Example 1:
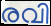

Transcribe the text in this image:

രവി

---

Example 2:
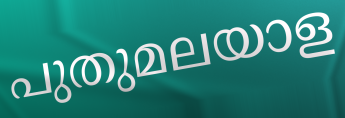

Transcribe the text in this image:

പുതുമലയാള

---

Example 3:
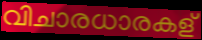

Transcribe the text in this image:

വിചാരധാരകള്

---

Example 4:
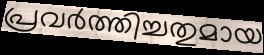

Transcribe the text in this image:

പ്രവർത്തിച്ചതുമായ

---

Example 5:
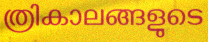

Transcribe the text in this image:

ത്രികാലങ്ങളുടെ